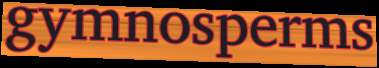
gymnosperms